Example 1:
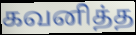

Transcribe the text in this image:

கவனித்த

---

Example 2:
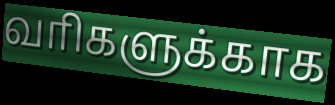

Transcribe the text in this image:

வரிகளுக்காக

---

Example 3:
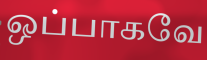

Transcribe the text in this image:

ஒப்பாகவே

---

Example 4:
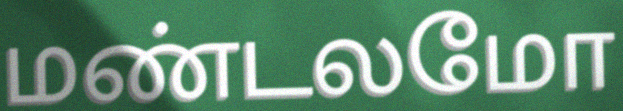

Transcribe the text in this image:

மண்டலமோ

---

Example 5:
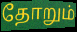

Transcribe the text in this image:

தோறும்